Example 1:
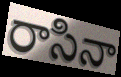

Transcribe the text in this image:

రాసినా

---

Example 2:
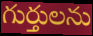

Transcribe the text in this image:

గుర్తులను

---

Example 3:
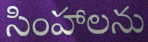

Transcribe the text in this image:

సింహాలను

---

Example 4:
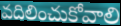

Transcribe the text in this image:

వదిలించుకోవాలి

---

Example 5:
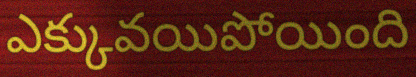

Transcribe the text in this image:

ఎక్కువయిపోయింది